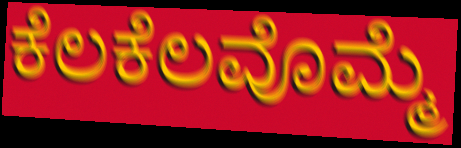
ಕೆಲಕೆಲವೊಮ್ಮೆ